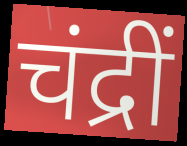
चंद्रीं